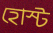
হোস্ট